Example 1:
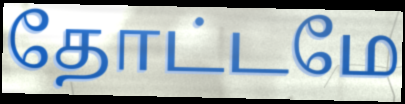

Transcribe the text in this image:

தோட்டமே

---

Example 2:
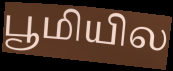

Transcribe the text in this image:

பூமியில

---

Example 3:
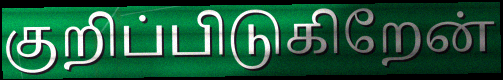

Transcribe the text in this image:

குறிப்பிடுகிறேன்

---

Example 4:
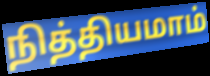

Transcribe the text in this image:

நித்தியமாம்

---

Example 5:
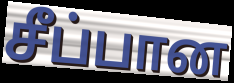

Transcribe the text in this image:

சீப்பான